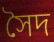
সৈদ